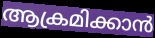
ആക്രമിക്കാൻ